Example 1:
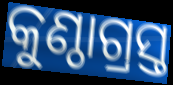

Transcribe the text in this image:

କୁଣ୍ଠାଗ୍ରସ୍ତ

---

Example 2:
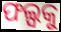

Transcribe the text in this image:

ଫଲ୍ସକୁ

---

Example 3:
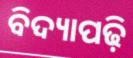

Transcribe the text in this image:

ବିଦ୍ୟାପଢ଼ି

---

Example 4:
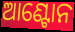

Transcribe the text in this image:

ଆଣ୍ଟୋନ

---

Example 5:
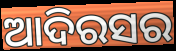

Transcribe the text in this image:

ଆଦିରସର